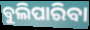
ବୁଲିପାରିବା